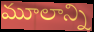
మూలాన్ని